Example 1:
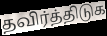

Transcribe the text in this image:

தவிர்த்திடுக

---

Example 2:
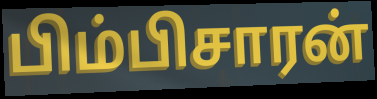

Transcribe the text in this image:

பிம்பிசாரன்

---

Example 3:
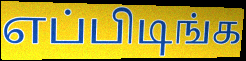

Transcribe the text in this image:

எப்பிடிங்க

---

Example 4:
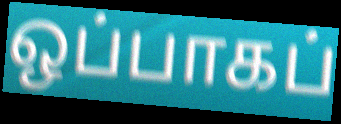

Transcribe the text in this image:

ஒப்பாகப்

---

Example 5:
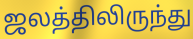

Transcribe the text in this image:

ஜலத்திலிருந்து